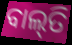
ବାଲ୍‌ତି